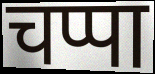
चप्पा